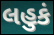
લહુકં